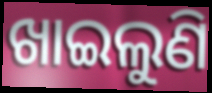
ଖାଇଲୁଣି